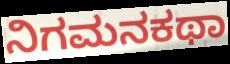
ನಿಗಮನಕಥಾ